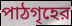
পাঠগৃহের